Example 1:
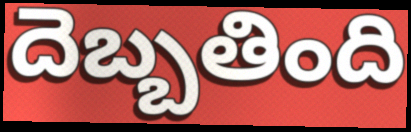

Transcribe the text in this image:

దెబ్బతింది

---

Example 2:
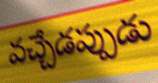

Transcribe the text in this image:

వచ్చేడప్పుడు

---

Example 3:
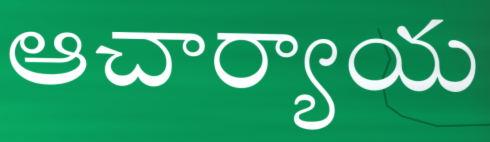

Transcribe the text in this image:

ఆచార్యాయ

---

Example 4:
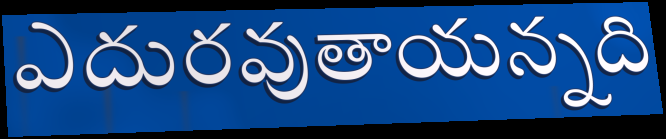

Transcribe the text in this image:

ఎదురవుతాయన్నది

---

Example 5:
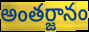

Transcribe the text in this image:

అంతర్జానం